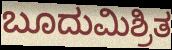
ಬೂದುಮಿಶ್ರಿತ